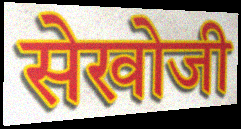
सेखोजी